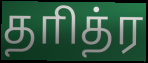
தரித்ர